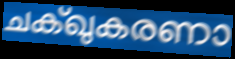
ചക്ഖുകരണാ